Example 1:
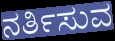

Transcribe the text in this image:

ನರ್ತಿಸುವ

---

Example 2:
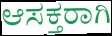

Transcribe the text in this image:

ಆಸಕ್ತರಾಗಿ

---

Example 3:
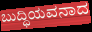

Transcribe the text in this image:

ಬುದ್ಧಿಯವನಾದ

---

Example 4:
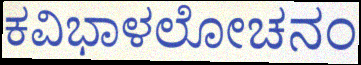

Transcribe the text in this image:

ಕವಿಭಾಳಲೋಚನಂ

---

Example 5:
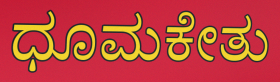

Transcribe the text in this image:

ಧೂಮಕೇತು